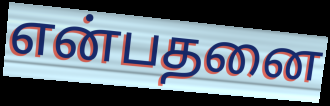
என்பதனை